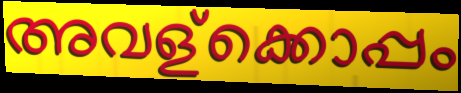
അവള്ക്കൊപ്പം